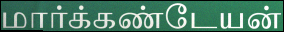
மார்க்கண்டேயன்